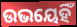
ଉଭୟେହିଁ